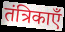
तंत्रिकाएँ